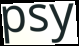
psy